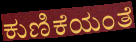
ಕುಣಿಕೆಯಂತೆ